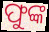
ଫୁଙ୍କ